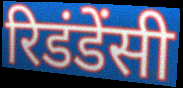
रिडंडेंसी